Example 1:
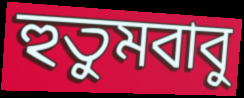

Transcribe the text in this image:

হুতুমবাবু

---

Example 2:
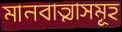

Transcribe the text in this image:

মানবাত্মাসমূহ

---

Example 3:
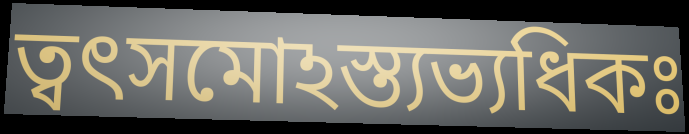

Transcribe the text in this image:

ত্বৎসমোঽস্ত্যভ্যধিকঃ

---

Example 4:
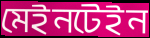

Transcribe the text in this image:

মেইনটেইন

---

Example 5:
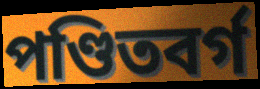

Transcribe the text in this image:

পণ্ডিতবর্গ